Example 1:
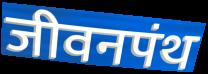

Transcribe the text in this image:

जीवनपंथ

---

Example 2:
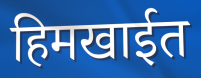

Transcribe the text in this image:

हिमखाईत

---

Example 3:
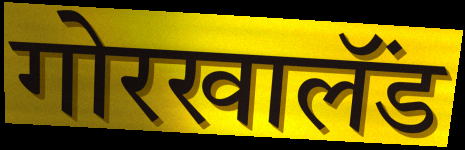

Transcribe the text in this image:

गोरखालॅंड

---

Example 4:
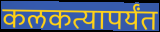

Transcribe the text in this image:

कलकत्यापर्यंत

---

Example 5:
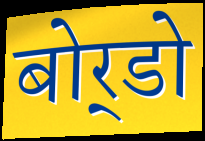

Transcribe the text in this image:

बोर्डो